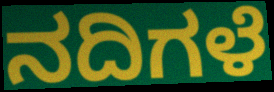
ನದಿಗಳೆ